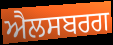
ਐਲਸਬਰਗ